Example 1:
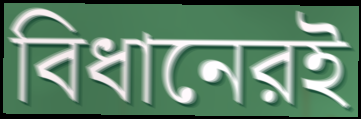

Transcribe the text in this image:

বিধানেরই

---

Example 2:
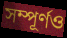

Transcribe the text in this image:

সম্পূর্ণও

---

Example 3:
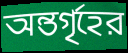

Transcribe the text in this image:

অন্তর্গৃহের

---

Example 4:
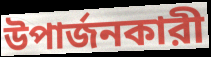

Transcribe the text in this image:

উপার্জনকারী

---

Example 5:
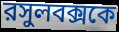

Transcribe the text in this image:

রসুলবক্সকে